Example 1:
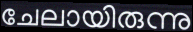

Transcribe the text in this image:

ചേലായിരുന്നു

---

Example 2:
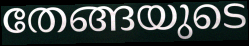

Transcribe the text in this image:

തേങ്ങയുടെ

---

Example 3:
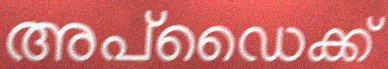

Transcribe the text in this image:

അപ്ഡൈക്ക്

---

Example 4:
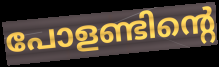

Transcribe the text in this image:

പോളണ്ടിന്റെ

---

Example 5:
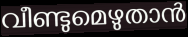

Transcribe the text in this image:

വീണ്ടുമെഴുതാൻ